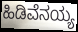
ಹಿಡಿವೆನಯ್ಯ